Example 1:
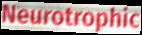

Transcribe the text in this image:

Neurotrophic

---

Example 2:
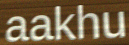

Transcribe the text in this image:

aakhu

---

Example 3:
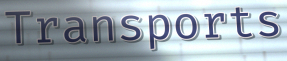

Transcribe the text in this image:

Transports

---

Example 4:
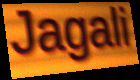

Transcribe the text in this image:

Jagali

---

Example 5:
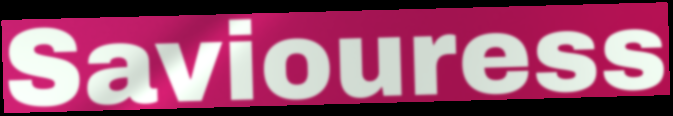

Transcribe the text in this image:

Saviouress